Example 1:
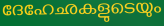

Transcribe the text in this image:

ദേഹേഛകളുടെയും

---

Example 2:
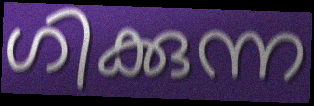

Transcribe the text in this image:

ഗിക്കുന്ന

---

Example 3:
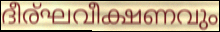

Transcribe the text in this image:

ദീര്ഘവീക്ഷണവും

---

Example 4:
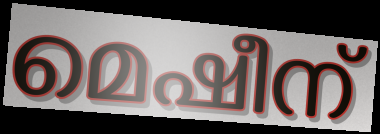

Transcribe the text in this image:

മെഷീന്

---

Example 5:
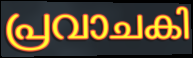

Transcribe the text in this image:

പ്രവാചകി